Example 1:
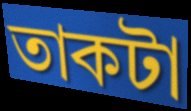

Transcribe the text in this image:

তাকটা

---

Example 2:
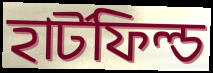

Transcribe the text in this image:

হার্টফিল্ড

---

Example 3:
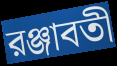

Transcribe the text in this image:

রঞ্জাবতী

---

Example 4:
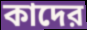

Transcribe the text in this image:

কাদের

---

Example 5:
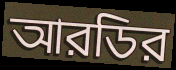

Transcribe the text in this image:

আরডির